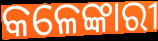
କଳେଙ୍କାରୀ